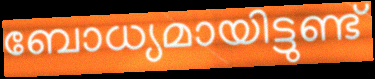
ബോധ്യമായിട്ടുണ്ട്